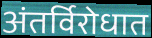
अंतर्विरोधात